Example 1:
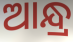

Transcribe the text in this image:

ଆନ୍ଧ୍ର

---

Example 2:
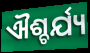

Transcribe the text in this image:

ଐଶ୍ଚର୍ଯ୍ୟ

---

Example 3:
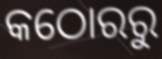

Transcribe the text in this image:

କଠୋରରୁ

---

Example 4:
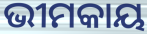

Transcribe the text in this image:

ଭୀମକାୟ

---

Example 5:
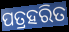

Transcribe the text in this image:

ପତ୍ରହରିତ